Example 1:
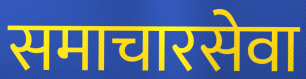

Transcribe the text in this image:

समाचारसेवा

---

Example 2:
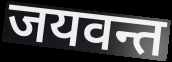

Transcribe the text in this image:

जयवन्त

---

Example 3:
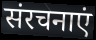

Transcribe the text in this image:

संरचनाएं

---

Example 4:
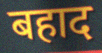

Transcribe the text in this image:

बहाद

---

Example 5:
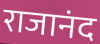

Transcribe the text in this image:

राजानंद